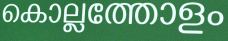
കൊല്ലത്തോളം